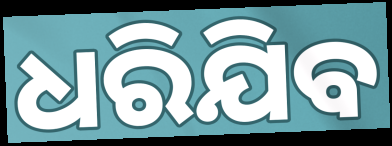
ଧରିଯିବ